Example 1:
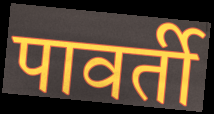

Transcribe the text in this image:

पावर्ती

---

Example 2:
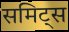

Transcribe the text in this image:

समिट्स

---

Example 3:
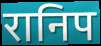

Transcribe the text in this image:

रानिप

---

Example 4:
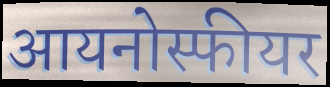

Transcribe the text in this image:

आयनोस्फीयर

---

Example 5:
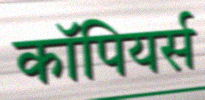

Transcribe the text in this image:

कॉपियर्स